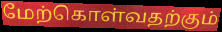
மேற்கொள்வதற்கும்